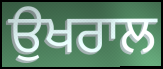
ਉਖਰਾਲ